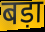
बड़ा